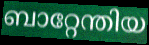
ബാറ്റേന്തിയ